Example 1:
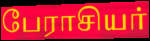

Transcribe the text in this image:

பேராசியர்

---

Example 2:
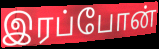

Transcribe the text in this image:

இரப்போன்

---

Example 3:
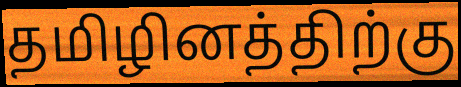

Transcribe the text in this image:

தமிழினத்திற்கு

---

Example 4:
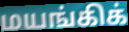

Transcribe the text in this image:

மயங்கிக்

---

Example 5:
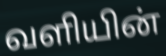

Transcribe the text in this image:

வளியின்